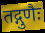
तद्गुणैः